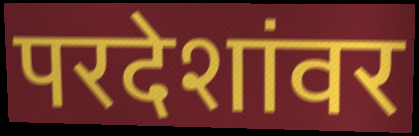
परदेशांवर